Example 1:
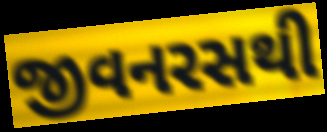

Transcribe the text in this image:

જીવનરસથી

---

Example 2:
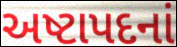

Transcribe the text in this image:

અષ્ટાપદનાં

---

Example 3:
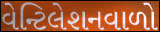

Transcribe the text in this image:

વેન્ટિલેશનવાળો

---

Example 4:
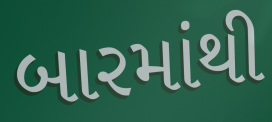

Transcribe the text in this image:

બારમાંથી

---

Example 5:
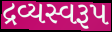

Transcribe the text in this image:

દ્રવ્યસ્વરૂપ